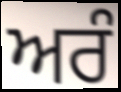
ਅਰੰ